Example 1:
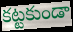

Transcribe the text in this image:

కట్టకుండా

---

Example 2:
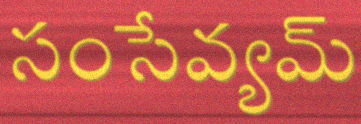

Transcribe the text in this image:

సంసేవ్యమ్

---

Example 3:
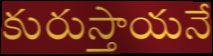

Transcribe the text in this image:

కురుస్తాయనే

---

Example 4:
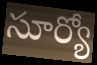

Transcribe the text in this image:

సూర్యో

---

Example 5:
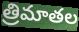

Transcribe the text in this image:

త్రిమాతల